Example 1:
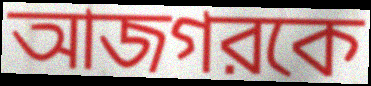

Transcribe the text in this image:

আজগরকে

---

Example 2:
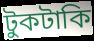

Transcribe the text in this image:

টুকটাকি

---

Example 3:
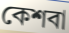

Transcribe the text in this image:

কেশবা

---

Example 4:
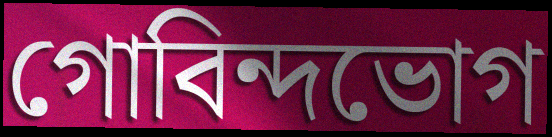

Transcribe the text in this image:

গোবিন্দভোগ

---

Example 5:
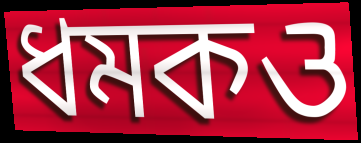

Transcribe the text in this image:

ধমকও